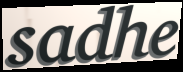
sadhe